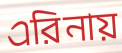
এরিনায়